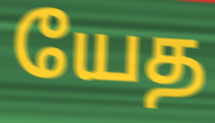
யேத